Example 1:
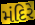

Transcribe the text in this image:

મંદિરે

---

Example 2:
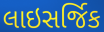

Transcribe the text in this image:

લાઇસર્જિક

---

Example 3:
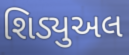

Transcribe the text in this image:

શિડ્યુઅલ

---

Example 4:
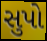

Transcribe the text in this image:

સુપો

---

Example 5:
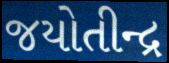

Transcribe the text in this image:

જયોતીન્દ્ર